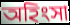
অহিংসা